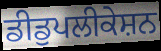
ਡੀਡੁਪਲੀਕੇਸ਼ਨ